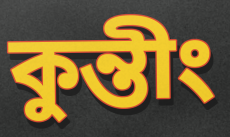
কুন্তীং